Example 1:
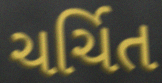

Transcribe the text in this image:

ચર્ચિત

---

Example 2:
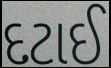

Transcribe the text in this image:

દટાઈ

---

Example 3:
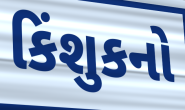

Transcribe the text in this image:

કિંશુકનો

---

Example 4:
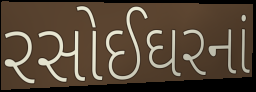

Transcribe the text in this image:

રસોઈઘરનાં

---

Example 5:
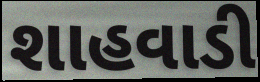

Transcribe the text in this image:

શાહવાડી